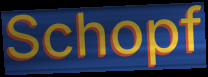
Schopf